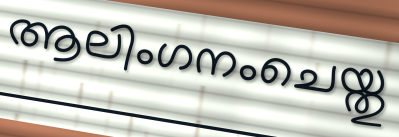
ആലിംഗനംചെയ്തു